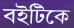
বইটিকে